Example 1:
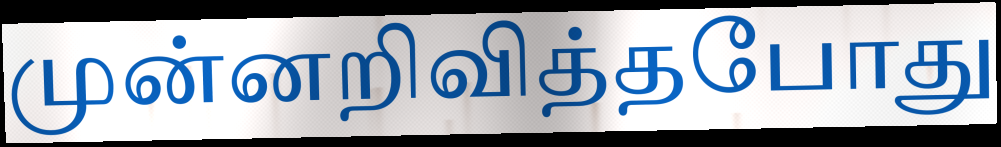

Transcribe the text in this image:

முன்னறிவித்தபோது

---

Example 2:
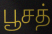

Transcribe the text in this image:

பூசத்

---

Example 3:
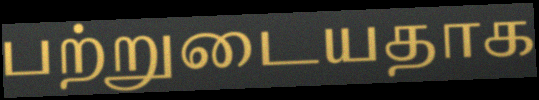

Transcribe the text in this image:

பற்றுடையதாக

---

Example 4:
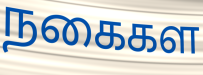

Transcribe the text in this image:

நகைகள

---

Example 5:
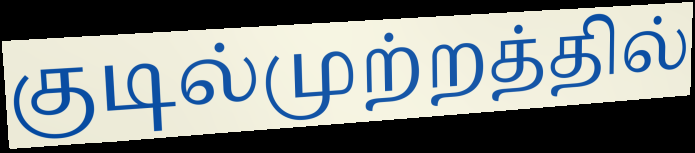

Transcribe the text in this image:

குடில்முற்றத்தில்